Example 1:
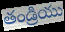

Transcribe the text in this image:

తండ్రియు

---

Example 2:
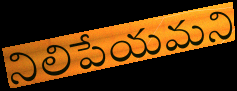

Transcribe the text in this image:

నిలిపేయమని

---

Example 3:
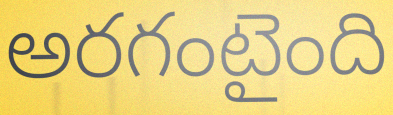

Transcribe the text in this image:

అరగంటైంది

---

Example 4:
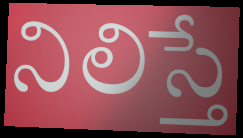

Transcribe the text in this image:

నిలిస్తే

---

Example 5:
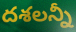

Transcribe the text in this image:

దశలన్నీ